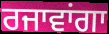
ਰਜਾਵਾਂਗਾ